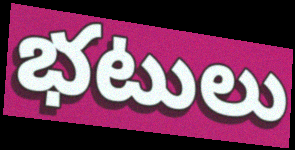
భటులు